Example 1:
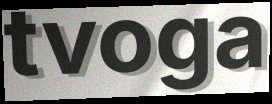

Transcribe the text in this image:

tvoga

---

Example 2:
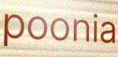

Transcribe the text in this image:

poonia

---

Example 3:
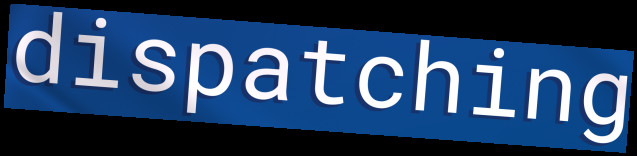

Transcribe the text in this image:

dispatching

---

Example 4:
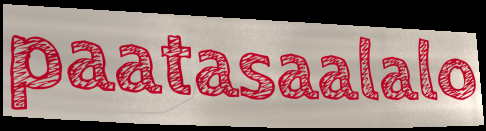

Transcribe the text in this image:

paatasaalalo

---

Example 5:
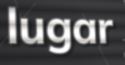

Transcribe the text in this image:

lugar